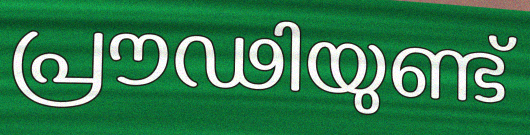
പ്രൗഢിയുണ്ട്